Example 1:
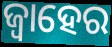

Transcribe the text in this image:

ଜ୍ୱାହେର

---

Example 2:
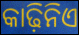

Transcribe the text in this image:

କାଢ଼ିନିଏ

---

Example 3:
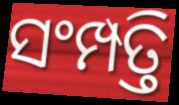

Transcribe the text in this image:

ସଂମ୍ପତ୍ତି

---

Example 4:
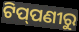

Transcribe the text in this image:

ଟିପ୍‌ପଣୀରୁ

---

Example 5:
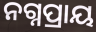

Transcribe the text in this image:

ନଗ୍ନପ୍ରାୟ